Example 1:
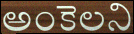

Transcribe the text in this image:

అంకెలని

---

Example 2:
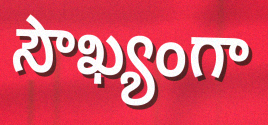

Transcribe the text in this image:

సౌఖ్యంగా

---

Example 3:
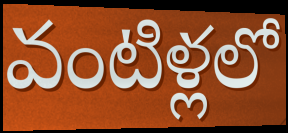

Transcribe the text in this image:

వంటిళ్లలో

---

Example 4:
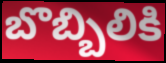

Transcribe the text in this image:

బొబ్బిలికి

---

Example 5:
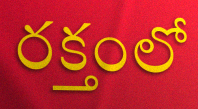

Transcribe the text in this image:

రక్తంలో